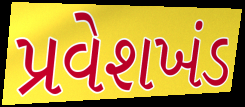
પ્રવેશખંડ